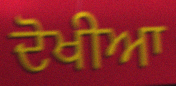
ਦੋਖੀਆ